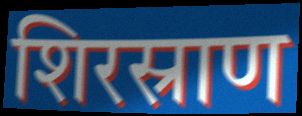
शिरस्राण